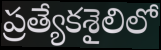
ప్రత్యేకశైలిలో